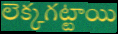
లెక్కగట్టాయి